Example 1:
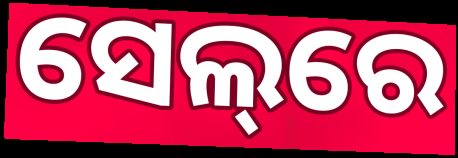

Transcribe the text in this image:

ସେଲ୍‌ରେ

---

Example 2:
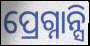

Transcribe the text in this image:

ପ୍ରେଗ୍ନାନ୍ସି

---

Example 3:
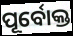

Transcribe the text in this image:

ପୂର୍ବୋକ୍ତ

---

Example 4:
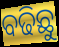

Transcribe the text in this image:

ବଢିଛୁ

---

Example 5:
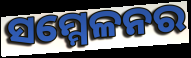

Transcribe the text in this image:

ସମ୍ମେଳନର